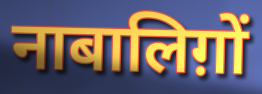
नाबालिग़ों